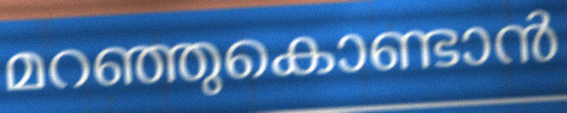
മറഞ്ഞുകൊണ്ടാൻ